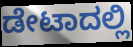
ಡೇಟಾದಲ್ಲಿ